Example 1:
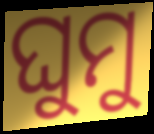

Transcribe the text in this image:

ଘୁମୁ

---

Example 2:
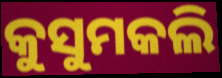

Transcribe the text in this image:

କୁସୁମକଲି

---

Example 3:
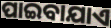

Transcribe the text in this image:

ପାଇବାଯାଏ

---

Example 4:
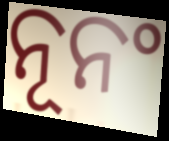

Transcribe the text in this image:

ନୂନଂ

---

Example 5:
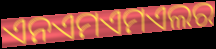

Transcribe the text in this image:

ଏନଏମଏମଏଲର